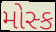
મોસ્ક